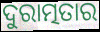
ଦୁରାତ୍ମତାର